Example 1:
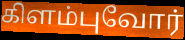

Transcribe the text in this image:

கிளம்புவோர்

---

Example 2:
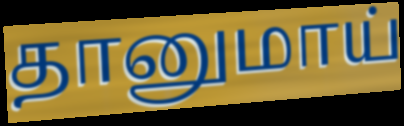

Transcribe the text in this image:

தானுமாய்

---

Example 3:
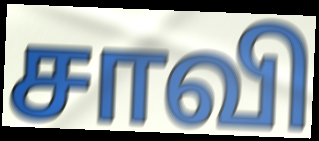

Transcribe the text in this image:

சாவி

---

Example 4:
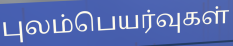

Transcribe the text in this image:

புலம்பெயர்வுகள்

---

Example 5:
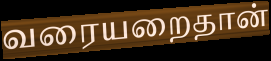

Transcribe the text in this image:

வரையறைதான்